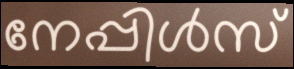
നേപ്പിൾസ്